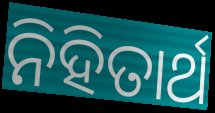
ନିହିତାର୍ଥ